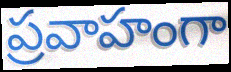
ప్రవాహంగా